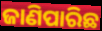
ଜାଣିପାରିଛ